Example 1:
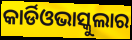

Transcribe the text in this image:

କାର୍ଡିଓଭାସ୍କୁଲାର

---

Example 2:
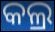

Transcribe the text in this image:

କଲ୍ର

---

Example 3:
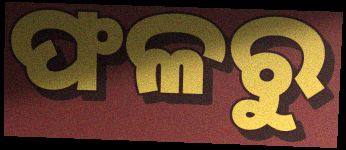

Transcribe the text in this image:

ଫଳରୁ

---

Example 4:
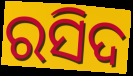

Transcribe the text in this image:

ରସିଦ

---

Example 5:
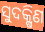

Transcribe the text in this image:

ସୁଦକ୍ଷିଣ